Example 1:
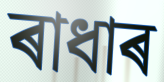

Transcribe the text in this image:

ৰাধাৰ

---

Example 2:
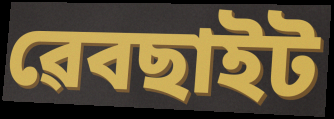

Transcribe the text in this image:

ৱেবছাইট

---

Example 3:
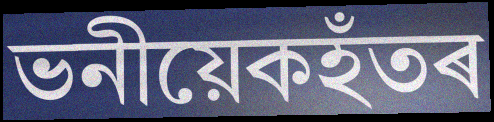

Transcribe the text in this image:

ভনীয়েকহঁতৰ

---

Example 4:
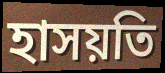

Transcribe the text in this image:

হাসয়তি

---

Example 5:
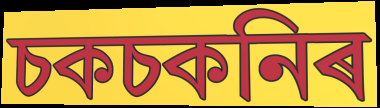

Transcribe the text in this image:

চকচকনিৰ